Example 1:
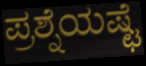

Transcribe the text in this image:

ಪ್ರಶ್ನೆಯಷ್ಟೆ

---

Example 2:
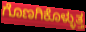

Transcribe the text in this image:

ಗೊಣಗಿಕೊಳ್ಳುತ್ತ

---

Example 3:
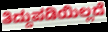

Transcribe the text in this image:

ತಿದ್ದುಪಡಿಯಿಲ್ಲದೆ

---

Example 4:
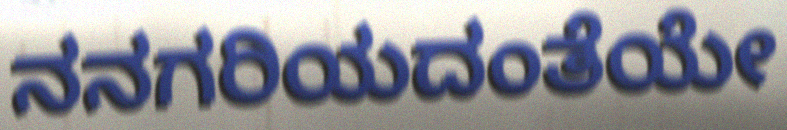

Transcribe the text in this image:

ನನಗರಿಯದಂತೆಯೇ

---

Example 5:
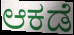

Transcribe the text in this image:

ಆಕಡೆ